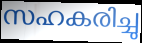
സഹകരിച്ചു